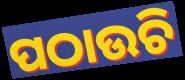
ପଠାଉଚି